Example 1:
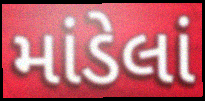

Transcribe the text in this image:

માંડેલાં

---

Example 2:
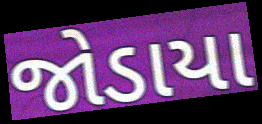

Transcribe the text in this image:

જોડાયા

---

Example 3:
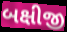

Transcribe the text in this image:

બક્ષીજી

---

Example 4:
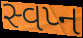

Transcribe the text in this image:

સ્વપ્ન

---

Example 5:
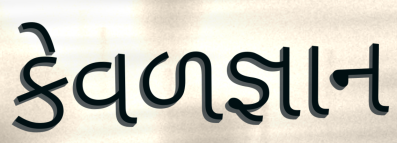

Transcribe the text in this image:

કેવળજ્ઞાન